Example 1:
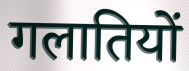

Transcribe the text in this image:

गलातियों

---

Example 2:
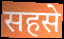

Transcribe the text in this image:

सहसे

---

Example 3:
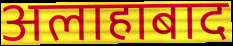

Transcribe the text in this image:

अलाहाबाद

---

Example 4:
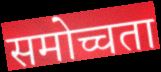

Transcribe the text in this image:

समोच्चता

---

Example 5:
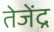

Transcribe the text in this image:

तेजेंद्र